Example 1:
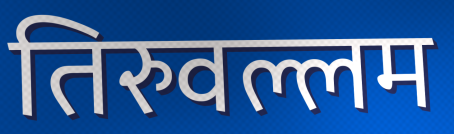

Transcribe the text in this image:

तिरुवल्लम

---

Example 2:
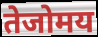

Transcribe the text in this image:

तेजोमय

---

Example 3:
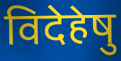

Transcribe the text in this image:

विदेहेषु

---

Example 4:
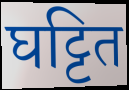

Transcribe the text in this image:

घट्टित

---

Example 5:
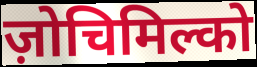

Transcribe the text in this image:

ज़ोचिमिल्को